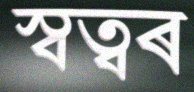
স্বত্বৰ